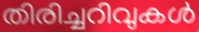
തിരിച്ചറിവുകൾ